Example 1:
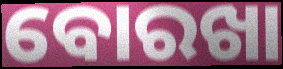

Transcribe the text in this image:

ବୋରଖା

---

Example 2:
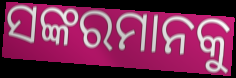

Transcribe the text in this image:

ସଙ୍କରମାନକୁ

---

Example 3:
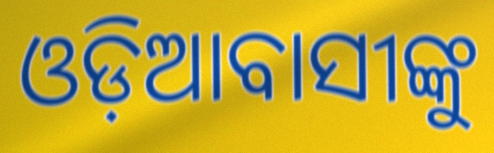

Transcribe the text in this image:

ଓଡ଼ିଆବାସୀଙ୍କୁ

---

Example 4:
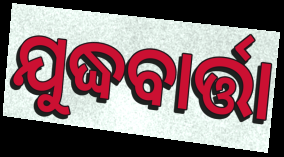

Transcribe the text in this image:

ଯୁଦ୍ଧବାର୍ତ୍ତା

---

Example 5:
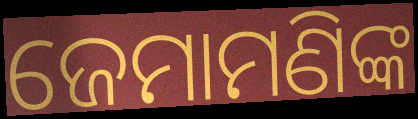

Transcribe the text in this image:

ଜେମାମଣିଙ୍କ